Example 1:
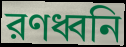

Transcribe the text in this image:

রণধ্বনি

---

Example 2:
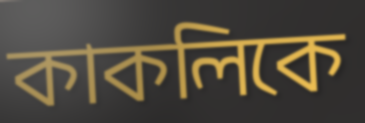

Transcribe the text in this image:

কাকলিকে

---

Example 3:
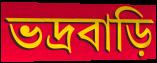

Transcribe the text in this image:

ভদ্রবাড়ি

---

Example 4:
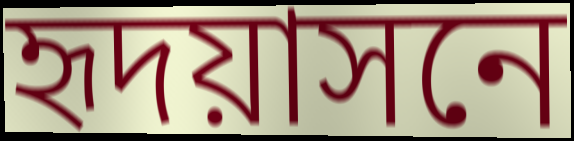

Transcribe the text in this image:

হৃদয়াসনে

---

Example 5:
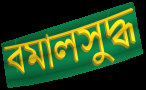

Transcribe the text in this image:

বমালসুদ্ধ